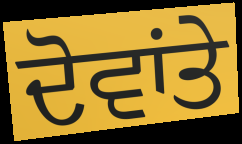
ਦੋਵਾਂਤੇ